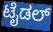
ಟೈಡಲ್